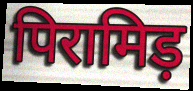
पिरामिड़